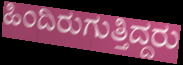
ಹಿಂದಿರುಗುತ್ತಿದ್ದರು